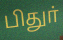
பிதுர்